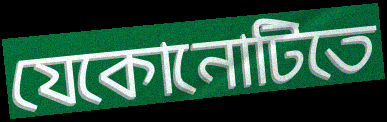
যেকোনোটিতে